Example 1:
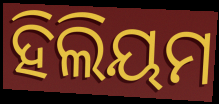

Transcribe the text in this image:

ହିଲିୟମ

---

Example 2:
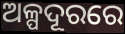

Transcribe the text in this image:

ଅଳ୍ପଦୂରରେ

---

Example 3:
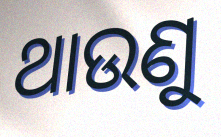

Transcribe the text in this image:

ଥାଉଣୁ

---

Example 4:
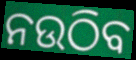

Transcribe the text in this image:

ନଉଠିବ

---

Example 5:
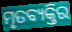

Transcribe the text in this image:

ମୃତବ୍ୟକ୍ତିର